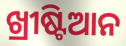
ଖ୍ରୀଷ୍ଟିଆନ